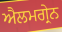
ਐਲਮਗ੍ਰੇਨ